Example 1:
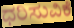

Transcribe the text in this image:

ಧರಿಸುವಿಕೆ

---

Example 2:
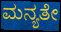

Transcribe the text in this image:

ಮನ್ಯತೇ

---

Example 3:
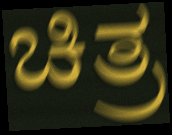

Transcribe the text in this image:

ಚಿತ್ರ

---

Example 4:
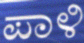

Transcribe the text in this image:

ಪಾಳಿ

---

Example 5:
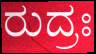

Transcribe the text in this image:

ರುದ್ರಃ